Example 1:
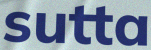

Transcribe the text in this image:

sutta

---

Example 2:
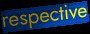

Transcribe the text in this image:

respective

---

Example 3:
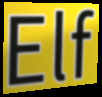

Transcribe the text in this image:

Elf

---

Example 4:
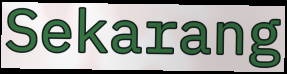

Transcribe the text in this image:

Sekarang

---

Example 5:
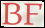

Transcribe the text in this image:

BF